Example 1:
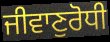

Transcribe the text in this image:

ਜੀਵਾਣੁਰੋਧੀ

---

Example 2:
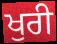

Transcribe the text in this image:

ਖੁਰੀ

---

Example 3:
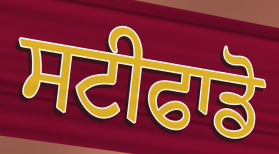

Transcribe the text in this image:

ਸਟੀਫਾਡੋ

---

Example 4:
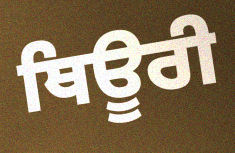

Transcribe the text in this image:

ਥਿਊਰੀ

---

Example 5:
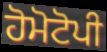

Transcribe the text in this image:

ਹੋਮੋਟੋਪੀ